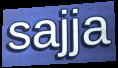
sajja